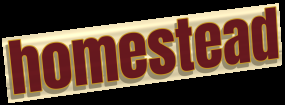
homestead